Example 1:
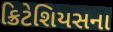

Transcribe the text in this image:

ક્રિટેશિયસના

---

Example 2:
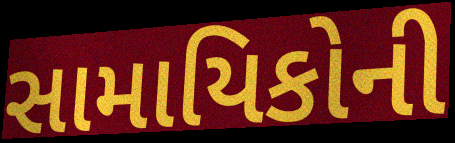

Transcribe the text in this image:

સામાયિકોની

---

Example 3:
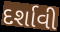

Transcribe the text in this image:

દર્શાવી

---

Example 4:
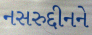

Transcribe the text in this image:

નસરુદ્દીનને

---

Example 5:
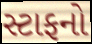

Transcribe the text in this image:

સ્ટાફનો